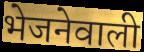
भेजनेवाली